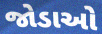
જોડાઓ